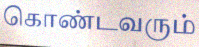
கொண்டவரும்